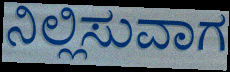
ನಿಲ್ಲಿಸುವಾಗ